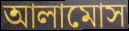
আলামোস